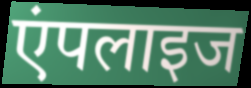
एंपलाइज